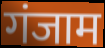
गंजाम